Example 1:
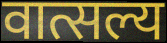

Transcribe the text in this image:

वात्सल्य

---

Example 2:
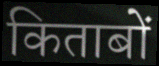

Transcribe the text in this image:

किताबों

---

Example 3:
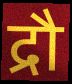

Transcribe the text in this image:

द्रौ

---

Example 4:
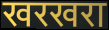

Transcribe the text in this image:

खरखरा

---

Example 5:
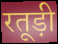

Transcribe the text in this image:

रतूड़ी